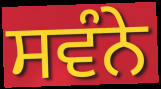
ਸਵੰਨੇ